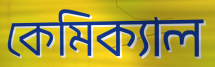
কেমিক্যাল